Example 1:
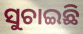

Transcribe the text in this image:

ସୁଚାଇଛି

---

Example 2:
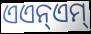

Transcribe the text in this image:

ଏଏନ୍ଏମ୍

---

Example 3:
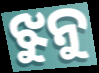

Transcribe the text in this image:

ଝୁନୁ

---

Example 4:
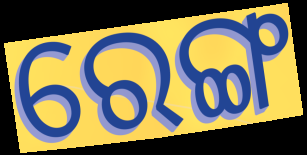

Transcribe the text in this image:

ରେଙ୍ଗ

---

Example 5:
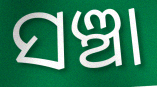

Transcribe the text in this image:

ସଞ୍ଚା